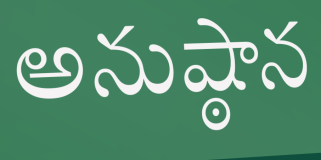
అనుష్ఠాన